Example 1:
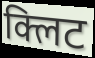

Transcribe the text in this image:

क्लिट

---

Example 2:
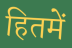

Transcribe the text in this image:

हितमें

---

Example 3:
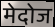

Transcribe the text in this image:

मेदोज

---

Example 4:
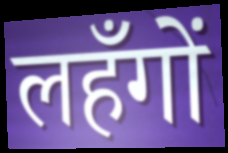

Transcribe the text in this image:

लहँगों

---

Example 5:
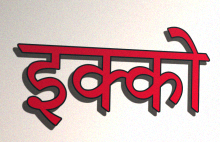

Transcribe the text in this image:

इक्को